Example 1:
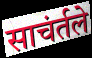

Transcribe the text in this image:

साचंर्तले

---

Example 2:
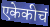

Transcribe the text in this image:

एकेकीचं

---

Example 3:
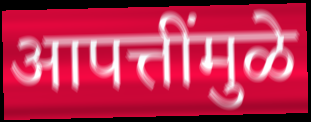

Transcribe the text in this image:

आपत्तींमुळे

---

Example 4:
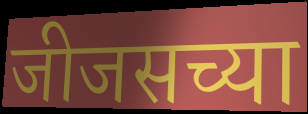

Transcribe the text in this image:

जीजसच्या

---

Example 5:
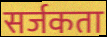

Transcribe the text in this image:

सर्जकता